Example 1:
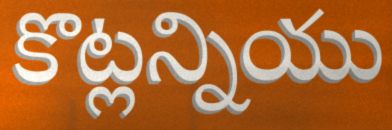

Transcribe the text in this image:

కొట్లన్నియు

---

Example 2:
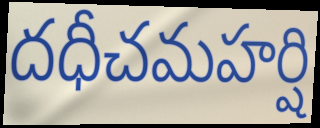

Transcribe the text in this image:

దధీచమహర్షి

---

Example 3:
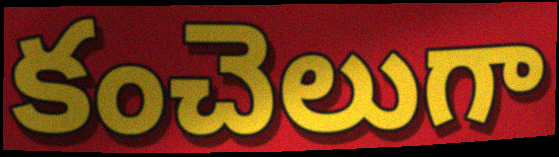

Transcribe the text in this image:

కంచెలుగా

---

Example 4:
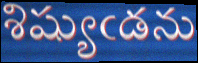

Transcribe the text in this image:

శిష్యుఁడను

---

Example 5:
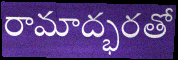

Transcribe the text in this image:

రామాద్భరతో